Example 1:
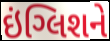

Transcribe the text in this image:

ઇંગ્લિશને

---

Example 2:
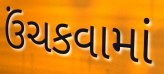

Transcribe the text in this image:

ઉંચકવામાં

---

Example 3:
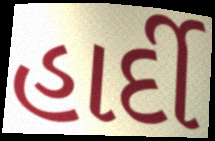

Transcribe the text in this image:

હાર્દી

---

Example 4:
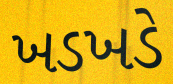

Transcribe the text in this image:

ખડખડે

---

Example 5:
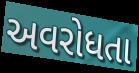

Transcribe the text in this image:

અવરોધતા